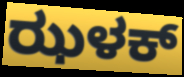
ಝಳಕ್